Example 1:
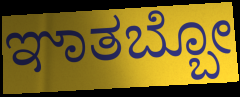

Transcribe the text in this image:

ಞಾತಬ್ಬೋ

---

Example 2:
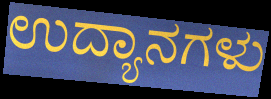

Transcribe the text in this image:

ಉದ್ಯಾನಗಳು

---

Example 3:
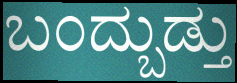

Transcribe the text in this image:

ಬಂದ್ಬುಡ್ತು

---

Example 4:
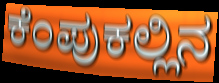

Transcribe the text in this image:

ಕೆಂಪುಕಲ್ಲಿನ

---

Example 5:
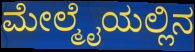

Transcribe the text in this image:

ಮೇಲ್ಮೈಯಲ್ಲಿನ